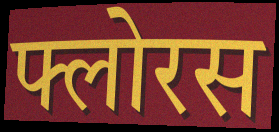
फ्लोरस